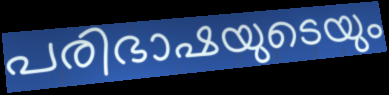
പരിഭാഷയുടെയും